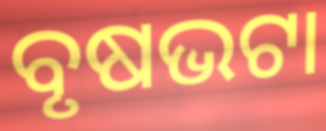
ବୃଷଭଟା